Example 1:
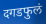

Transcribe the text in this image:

दगडफुलं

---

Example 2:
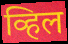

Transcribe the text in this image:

व्हिल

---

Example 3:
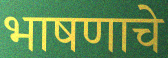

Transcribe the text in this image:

भाषणाचे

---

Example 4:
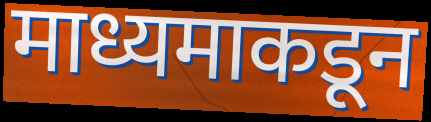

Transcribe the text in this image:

माध्यमाकडून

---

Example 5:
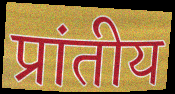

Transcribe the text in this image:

प्रांतीय